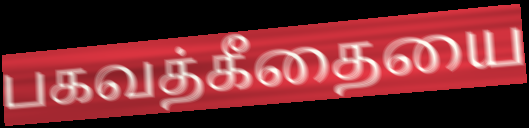
பகவத்கீதையை